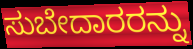
ಸುಬೇದಾರರನ್ನು